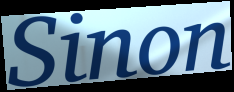
Sinon